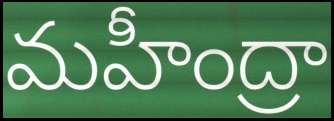
మహీంద్రా